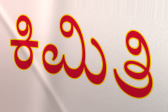
ಕಿಮಿತಿ